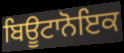
ਬਿਊਟਾਨੋਇਕ